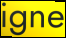
igne